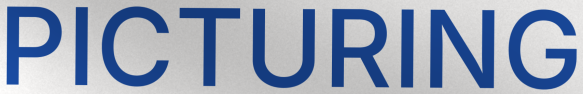
PICTURING